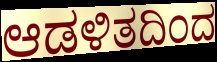
ಆಡಳಿತದಿಂದ